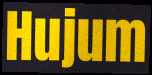
Hujum